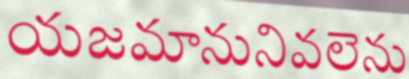
యజమానునివలెను